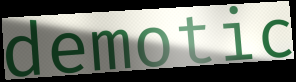
demotic